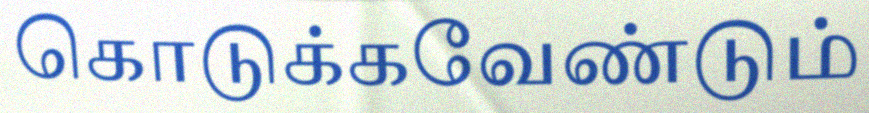
கொடுக்கவேண்டும்